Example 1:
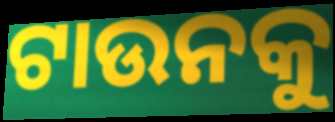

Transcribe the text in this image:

ଟାଉନକୁ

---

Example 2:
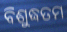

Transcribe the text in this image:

ବିଶୁଦ୍ଧତମ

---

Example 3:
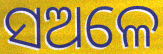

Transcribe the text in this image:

ସଅଳେ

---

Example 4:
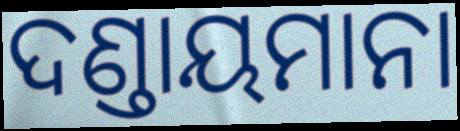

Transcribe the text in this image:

ଦଣ୍ଡାୟମାନା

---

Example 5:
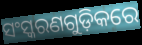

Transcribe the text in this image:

ସଂସ୍କରଣଗୁଡ଼ିକରେ